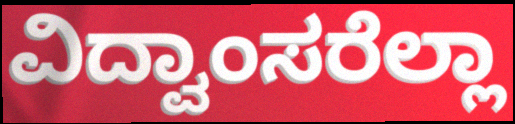
ವಿದ್ವಾಂಸರೆಲ್ಲಾ